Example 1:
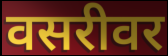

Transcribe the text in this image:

वसरीवर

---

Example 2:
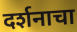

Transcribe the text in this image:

दर्शनाचा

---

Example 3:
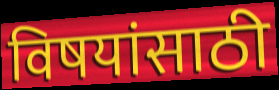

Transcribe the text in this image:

विषयांसाठी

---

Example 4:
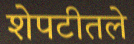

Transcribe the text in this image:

शेपटीतले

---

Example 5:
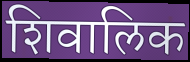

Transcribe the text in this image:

शिवालिक